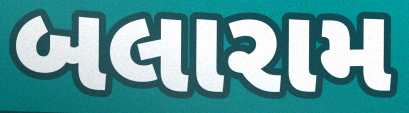
બલારામ